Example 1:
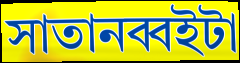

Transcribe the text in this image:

সাতানব্বইটা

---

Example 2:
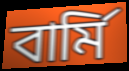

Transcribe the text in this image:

বার্মি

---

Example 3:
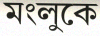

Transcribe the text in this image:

মংলুকে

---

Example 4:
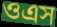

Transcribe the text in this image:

ওএস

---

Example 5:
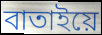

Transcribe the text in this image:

বাতাইয়ে